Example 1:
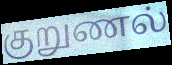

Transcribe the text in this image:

குறுணல்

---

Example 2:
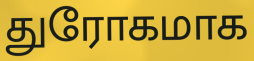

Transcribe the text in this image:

துரோகமாக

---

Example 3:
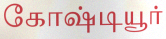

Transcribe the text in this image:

கோஷ்டியூர்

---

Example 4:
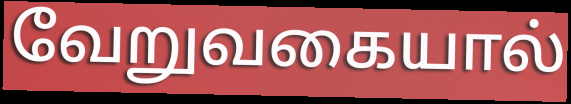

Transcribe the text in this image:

வேறுவகையால்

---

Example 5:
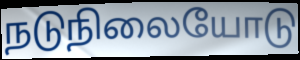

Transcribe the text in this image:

நடுநிலையோடு